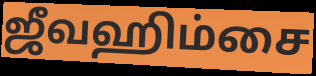
ஜீவஹிம்சை